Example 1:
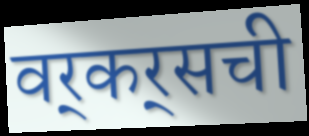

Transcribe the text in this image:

वर्कर्सची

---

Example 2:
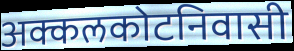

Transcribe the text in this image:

अक्कलकोटनिवासी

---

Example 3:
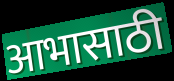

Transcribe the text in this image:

आभासाठी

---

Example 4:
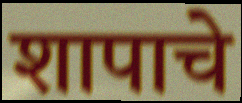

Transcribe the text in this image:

शापाचे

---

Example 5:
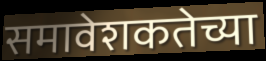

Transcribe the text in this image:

समावेशकतेच्या